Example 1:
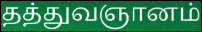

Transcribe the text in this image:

தத்துவஞானம்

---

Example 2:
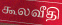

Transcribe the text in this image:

கூலவீதி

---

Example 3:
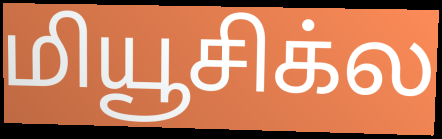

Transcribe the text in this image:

மியூசிக்ல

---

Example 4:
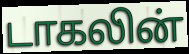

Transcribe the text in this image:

டாகலின்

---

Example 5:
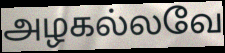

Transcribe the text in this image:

அழகல்லவே